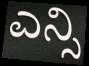
ಎನ್ಸಿ